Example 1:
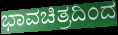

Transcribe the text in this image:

ಭಾವಚಿತ್ರದಿಂದ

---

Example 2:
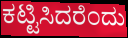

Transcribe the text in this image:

ಕಟ್ಟಿಸಿದರೆಂದು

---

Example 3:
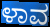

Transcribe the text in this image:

ಳಾವ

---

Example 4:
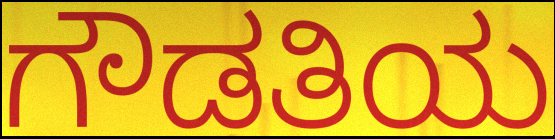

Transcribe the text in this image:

ಗೌಡತಿಯ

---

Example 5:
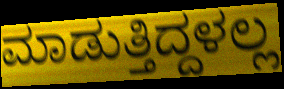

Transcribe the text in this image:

ಮಾಡುತ್ತಿದ್ದಳಲ್ಲ